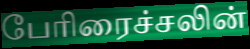
பேரிரைச்சலின்